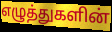
எழுத்துகளின்